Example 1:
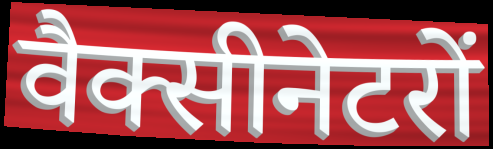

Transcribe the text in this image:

वैक्सीनेटरों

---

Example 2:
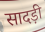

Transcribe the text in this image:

सादड़ी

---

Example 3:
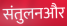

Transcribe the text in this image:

संतुलनऔर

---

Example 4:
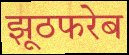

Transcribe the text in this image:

झूठफरेब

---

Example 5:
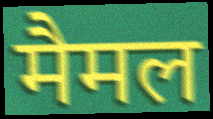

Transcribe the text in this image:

मैमल